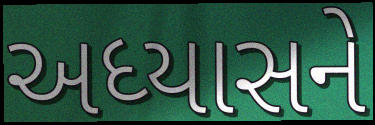
અધ્યાસને